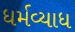
ધર્મવ્યાધ